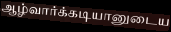
ஆழ்வார்க்கடியானுடைய